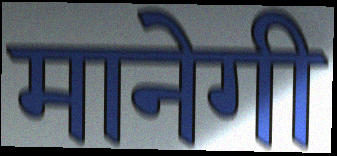
मानेगी